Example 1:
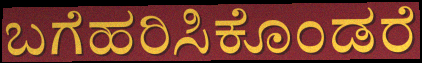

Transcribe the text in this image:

ಬಗೆಹರಿಸಿಕೊಂಡರೆ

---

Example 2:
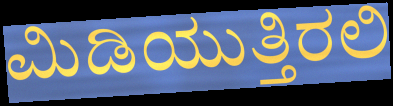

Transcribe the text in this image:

ಮಿಡಿಯುತ್ತಿರಲಿ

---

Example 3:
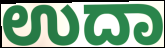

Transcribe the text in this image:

ಉದಾ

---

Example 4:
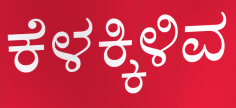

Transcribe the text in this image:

ಕೆಳಕ್ಕಿಳಿವ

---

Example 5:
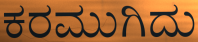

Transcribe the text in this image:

ಕರಮುಗಿದು